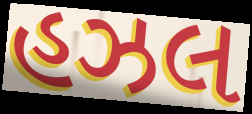
હઝલ